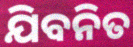
ଯିବନିତ